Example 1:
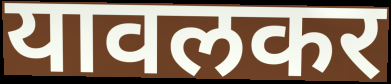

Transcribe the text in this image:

यावलकर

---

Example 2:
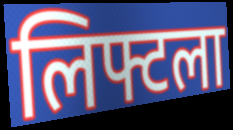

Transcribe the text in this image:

लिफ्टला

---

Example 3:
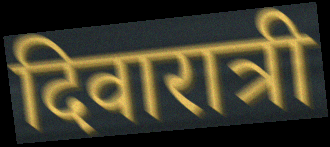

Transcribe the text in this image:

दिवारात्री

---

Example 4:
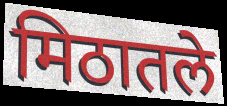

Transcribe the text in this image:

मिठातले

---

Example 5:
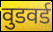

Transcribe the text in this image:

वुडवर्ड